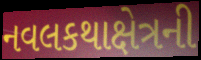
નવલકથાક્ષેત્રની